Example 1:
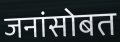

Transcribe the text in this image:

जनांसोबत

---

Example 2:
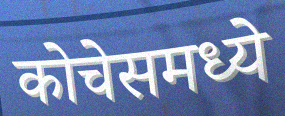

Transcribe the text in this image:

कोचेसमध्ये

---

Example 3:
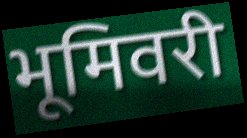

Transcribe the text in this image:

भूमिवरी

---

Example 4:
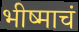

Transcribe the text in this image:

भीष्माचं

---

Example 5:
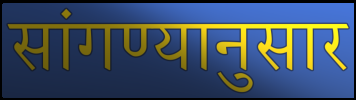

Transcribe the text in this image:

सांगण्यानुसार